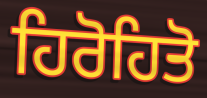
ਹਿਰੋਹਿਤੋ